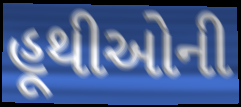
હૂથીઓની